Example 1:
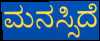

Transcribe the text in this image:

ಮನಸ್ಸಿದೆ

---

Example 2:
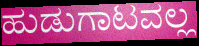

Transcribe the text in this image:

ಹುಡುಗಾಟವಲ್ಲ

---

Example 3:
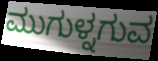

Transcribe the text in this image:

ಮುಗುಳ್ನಗುವ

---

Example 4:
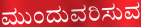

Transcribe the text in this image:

ಮುಂದುವರಿಸುವ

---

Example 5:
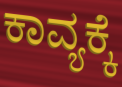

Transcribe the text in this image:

ಕಾವ್ಯಕ್ಕೆ